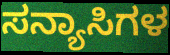
ಸನ್ಯಾಸಿಗಳ